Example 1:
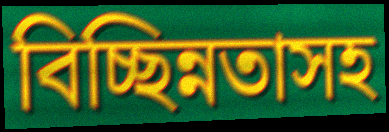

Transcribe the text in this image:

বিচ্ছিন্নতাসহ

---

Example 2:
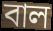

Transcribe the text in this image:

বাল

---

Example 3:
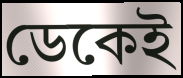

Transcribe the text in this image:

ডেকেই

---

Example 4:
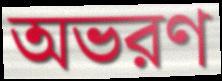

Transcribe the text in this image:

অভরণ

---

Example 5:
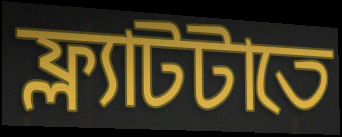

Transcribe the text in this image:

ফ্ল্যাটটাতে